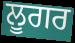
ਲੂਗਰ